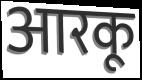
आरकू